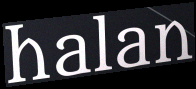
halan